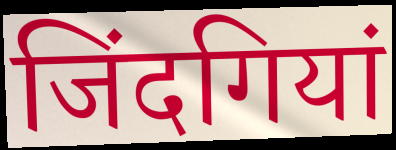
जिंदगियां